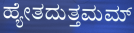
ಹ್ಯೇತದುತ್ತಮಮ್